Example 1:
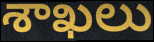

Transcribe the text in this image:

శాఖలు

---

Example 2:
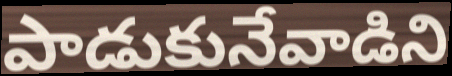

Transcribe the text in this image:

పాడుకునేవాడిని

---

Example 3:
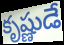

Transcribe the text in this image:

కృష్ణుడే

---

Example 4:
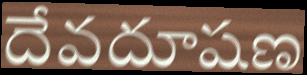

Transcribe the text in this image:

దేవదూషణ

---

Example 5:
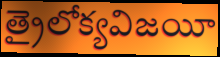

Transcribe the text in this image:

త్రైలోక్యవిజయీ